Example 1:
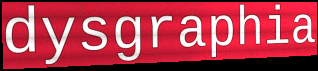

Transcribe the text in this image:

dysgraphia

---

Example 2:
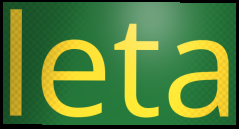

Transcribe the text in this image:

leta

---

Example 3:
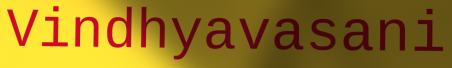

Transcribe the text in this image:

Vindhyavasani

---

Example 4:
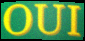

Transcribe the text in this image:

OUI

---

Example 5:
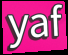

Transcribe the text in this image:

yaf